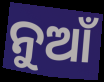
ନୁଆଁ